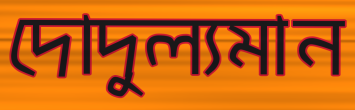
দোদুল্যমান